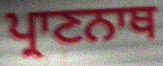
ਪ੍ਰਾਣਨਾਥ